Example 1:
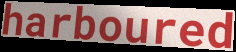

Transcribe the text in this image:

harboured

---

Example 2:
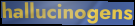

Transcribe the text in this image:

hallucinogens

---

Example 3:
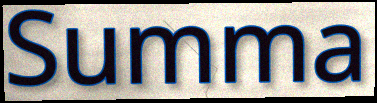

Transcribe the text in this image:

Summa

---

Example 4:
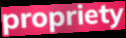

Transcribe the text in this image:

propriety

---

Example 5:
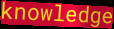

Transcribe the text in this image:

knowledge